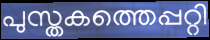
പുസ്തകത്തെപ്പറ്റി